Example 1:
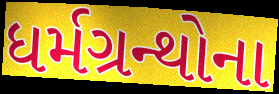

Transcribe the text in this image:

ધર્મગ્રન્થોના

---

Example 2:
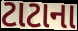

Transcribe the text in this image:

ટાટાના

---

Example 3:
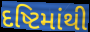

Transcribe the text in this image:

દષ્ટિમાંથી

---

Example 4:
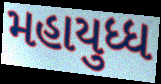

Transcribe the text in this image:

મહાયુધ્ધ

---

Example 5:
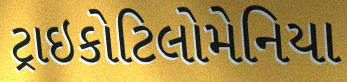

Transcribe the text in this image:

ટ્રાઇકોટિલોમેનિયા